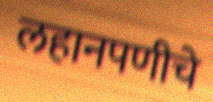
लहानपणीचे